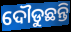
ଦୌଡୁଛନ୍ତି